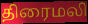
திரைமலி